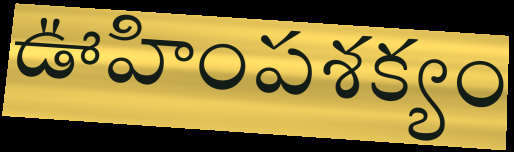
ఊహింపశక్యం